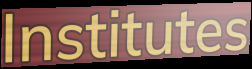
Institutes